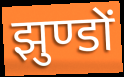
झुण्डों